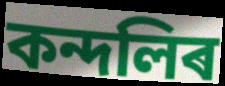
কন্দলিৰ